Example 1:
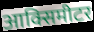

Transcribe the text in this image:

आक्सिमीटर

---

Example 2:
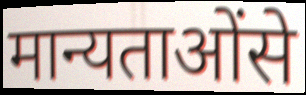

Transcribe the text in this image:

मान्यताओंसे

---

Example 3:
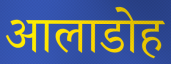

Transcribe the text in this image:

आलाडोह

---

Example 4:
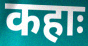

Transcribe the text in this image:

कहाः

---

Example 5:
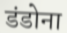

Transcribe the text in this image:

डंडोना